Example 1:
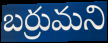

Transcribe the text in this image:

బర్రుమని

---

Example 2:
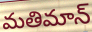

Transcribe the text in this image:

మతిమాన్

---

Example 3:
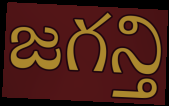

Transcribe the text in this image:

జగన్తి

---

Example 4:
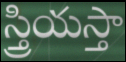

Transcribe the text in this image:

స్త్రియస్తా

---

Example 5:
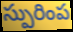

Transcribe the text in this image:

స్పురింప